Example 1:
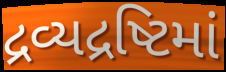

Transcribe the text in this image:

દ્રવ્યદ્રષ્ટિમાં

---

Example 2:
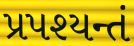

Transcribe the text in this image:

પ્રપશ્યન્તં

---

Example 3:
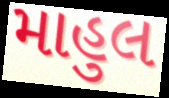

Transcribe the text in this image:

માહુલ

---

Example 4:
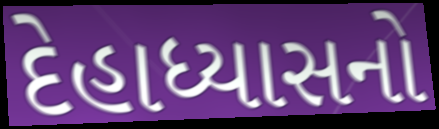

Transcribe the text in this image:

દેહાધ્યાસનો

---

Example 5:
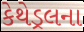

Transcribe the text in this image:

કેથેડ્રલના